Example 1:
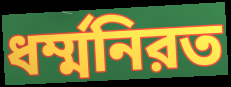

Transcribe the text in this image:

ধর্ম্মনিরত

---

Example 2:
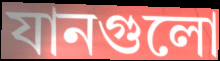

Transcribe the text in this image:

যানগুলো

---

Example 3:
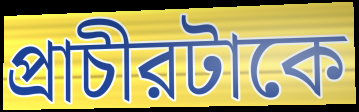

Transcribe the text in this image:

প্রাচীরটাকে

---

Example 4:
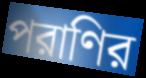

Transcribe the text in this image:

পরাণির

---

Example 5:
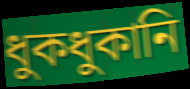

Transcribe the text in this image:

ধুকধুকানি